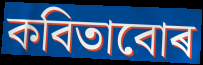
কবিতাবোৰ